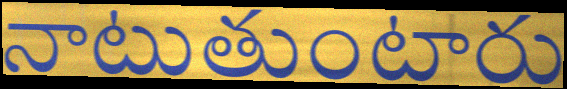
నాటుతుంటారు